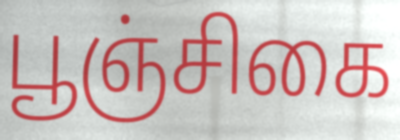
பூஞ்சிகை